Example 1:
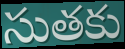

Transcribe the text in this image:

సుతకు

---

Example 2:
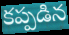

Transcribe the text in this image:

కప్పడిన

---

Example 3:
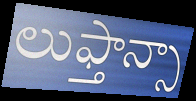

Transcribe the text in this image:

లుఫ్తాన్సా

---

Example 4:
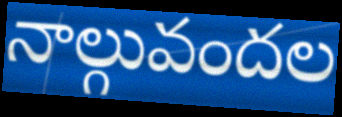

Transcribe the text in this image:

నాల్గువందల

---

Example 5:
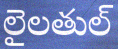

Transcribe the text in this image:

లైలతుల్